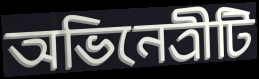
অভিনেত্রীটি